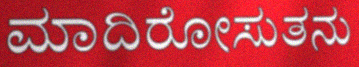
ಮಾದಿರೋಸುತನು